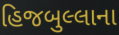
હિજબુલ્લાના